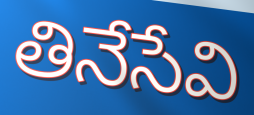
తినేసేవి